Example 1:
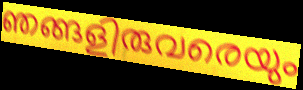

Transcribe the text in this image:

ഞങ്ങളിരുവരെയും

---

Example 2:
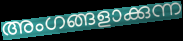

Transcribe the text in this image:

അംഗങ്ങളാക്കുന്ന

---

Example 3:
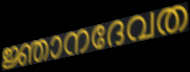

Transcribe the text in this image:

ജ്ഞാനദേവത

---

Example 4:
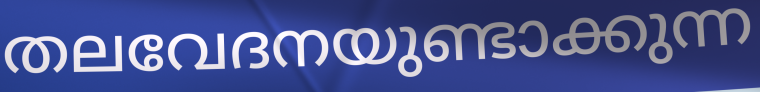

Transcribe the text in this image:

തലവേദനയുണ്ടാക്കുന്ന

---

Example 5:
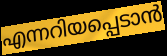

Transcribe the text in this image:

എന്നറിയപ്പെടാൻ